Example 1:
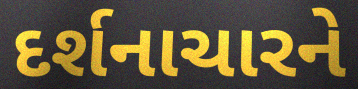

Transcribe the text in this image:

દર્શનાચારને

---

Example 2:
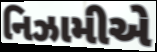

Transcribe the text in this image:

નિઝામીએ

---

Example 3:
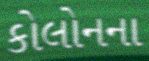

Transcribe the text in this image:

કોલોનના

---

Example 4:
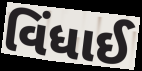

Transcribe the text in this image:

વિંધાઈ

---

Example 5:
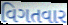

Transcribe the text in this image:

વિગતવાર